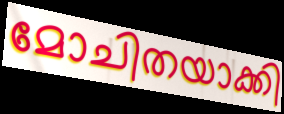
മോചിതയാക്കി